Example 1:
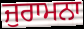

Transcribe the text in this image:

ਜੁਰਾਮਨਾ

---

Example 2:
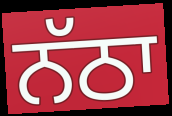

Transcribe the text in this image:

ਨੱਠਾ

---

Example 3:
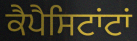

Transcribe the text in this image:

ਕੈਪੈਸਿਟਾਂਟਾਂ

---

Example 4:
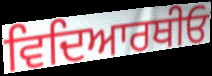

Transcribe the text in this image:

ਵਿਦਿਆਰਥੀਓ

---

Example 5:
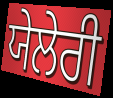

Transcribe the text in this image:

ਯੇਲੇਰੀ